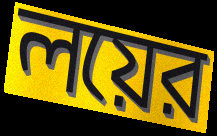
লয়ের